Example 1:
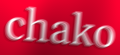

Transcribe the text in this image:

chako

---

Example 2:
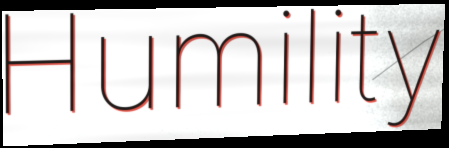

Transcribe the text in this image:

Humility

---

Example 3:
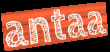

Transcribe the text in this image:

antaa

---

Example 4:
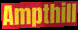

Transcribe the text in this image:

Ampthill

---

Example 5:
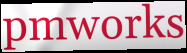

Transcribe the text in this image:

pmworks